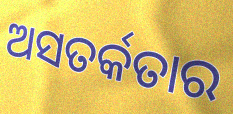
ଅସତର୍କତାର